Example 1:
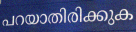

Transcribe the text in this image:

പറയാതിരിക്കുക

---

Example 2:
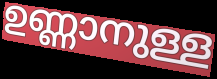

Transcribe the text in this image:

ഉണ്ണാനുള്ള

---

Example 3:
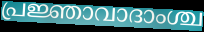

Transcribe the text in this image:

പ്രജ്ഞാവാദാംശ്ച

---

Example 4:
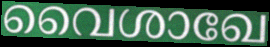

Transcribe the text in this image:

വൈശാഖേ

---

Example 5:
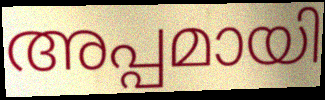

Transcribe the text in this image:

അപ്പമായി